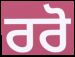
ਰਰੋ